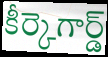
కీర్కెగార్డ్